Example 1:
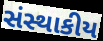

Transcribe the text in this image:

સંસ્થાકીય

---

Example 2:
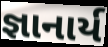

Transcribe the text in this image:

જ્ઞાનાર્ય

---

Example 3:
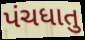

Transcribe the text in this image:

પંચધાતુ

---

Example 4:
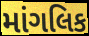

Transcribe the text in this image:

માંગલિક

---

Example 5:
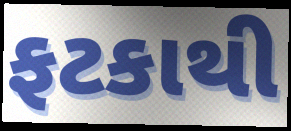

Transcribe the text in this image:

ફટકાથી